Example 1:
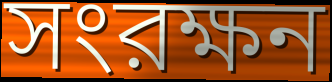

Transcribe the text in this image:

সংরক্ষন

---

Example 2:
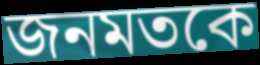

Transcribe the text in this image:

জনমতকে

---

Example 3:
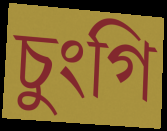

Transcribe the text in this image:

চুংগি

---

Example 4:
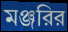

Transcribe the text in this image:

মঞ্জরির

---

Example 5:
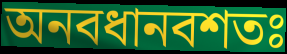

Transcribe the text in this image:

অনবধানবশতঃ